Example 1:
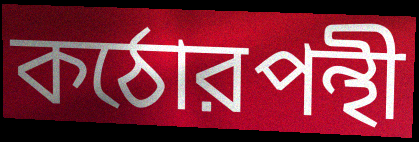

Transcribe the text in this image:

কঠোরপন্থী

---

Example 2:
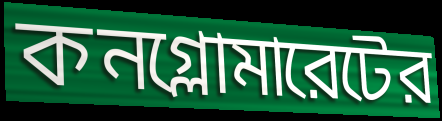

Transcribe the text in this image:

কনগ্লোমারেটের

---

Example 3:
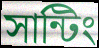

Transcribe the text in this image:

সান্টিং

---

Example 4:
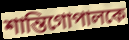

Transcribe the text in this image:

শান্তিগোপালকে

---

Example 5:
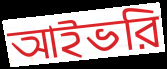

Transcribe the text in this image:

আইভরি